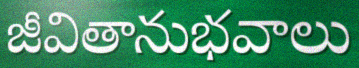
జీవితానుభవాలు